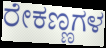
ರೇಕಣ್ಣಗಳ